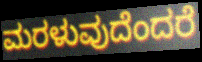
ಮರಳುವುದೆಂದರೆ